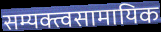
सम्यक्त्वसामायिक